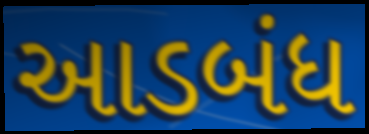
આડબંધ